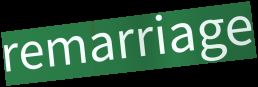
remarriage